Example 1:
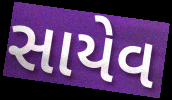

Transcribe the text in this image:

સાયેવ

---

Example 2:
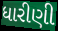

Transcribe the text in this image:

ધારીણી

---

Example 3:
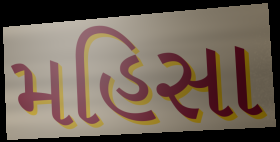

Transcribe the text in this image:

મહિસા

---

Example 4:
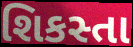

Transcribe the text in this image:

શિકસ્તા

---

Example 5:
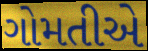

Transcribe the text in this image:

ગોમતીએ